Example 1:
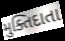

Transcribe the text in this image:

મુક્તિદાતા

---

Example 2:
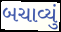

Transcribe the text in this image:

બચાવ્યું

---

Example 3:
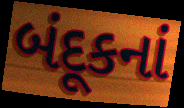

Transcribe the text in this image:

બંદૂકનાં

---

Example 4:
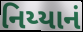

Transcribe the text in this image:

નિય્યાનં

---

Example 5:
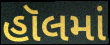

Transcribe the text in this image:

હૉલમાં